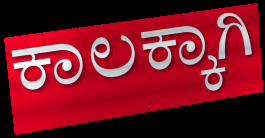
ಕಾಲಕ್ಕಾಗಿ